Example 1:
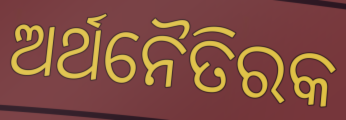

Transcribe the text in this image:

ଅର୍ଥନୈତିରକ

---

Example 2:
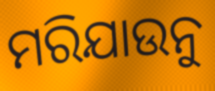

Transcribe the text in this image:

ମରିଯାଉନୁ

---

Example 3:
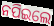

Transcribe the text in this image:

ନପିଇଲେ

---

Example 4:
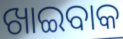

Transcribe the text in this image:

ଖାଇବାକ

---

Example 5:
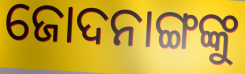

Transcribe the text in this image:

ଜୋଦନାଙ୍ଗଙ୍କୁ